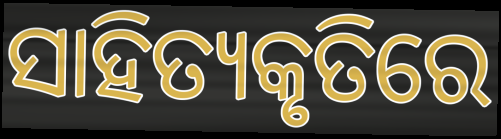
ସାହିତ୍ୟକୃତିରେ